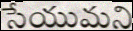
సేయుమని